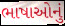
ભાષાઓનું